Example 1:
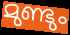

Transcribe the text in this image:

മുണ്ടും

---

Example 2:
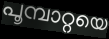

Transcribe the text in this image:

പൂമ്പാറ്റയെ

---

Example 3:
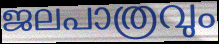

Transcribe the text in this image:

ജലപാത്രവും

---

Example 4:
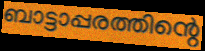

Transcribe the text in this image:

ബാട്ടാപ്പരത്തിന്റെ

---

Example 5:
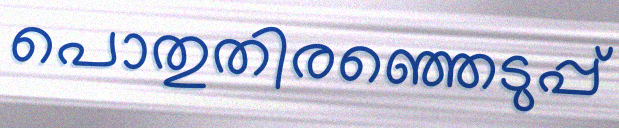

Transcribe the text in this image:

പൊതുതിരഞ്ഞെടുപ്പ്